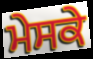
ਮੇਸਕੇ